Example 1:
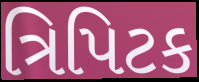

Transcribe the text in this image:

ત્રિપિટક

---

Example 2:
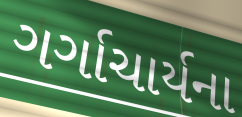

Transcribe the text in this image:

ગર્ગાચાર્યના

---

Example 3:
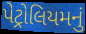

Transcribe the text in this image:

પેટ્રોલિયમનું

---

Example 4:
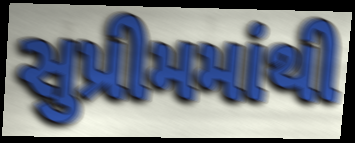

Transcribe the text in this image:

સુપ્રીમમાંથી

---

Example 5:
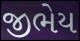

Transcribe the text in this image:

જીભેય